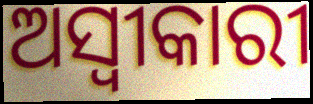
ଅସ୍ୱୀକାରୀ